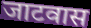
जाटवास